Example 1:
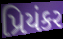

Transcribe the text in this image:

પ્રિયંકર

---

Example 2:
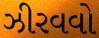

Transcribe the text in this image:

ઝીરવવો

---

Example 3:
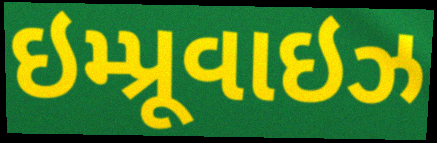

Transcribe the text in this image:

ઇમ્પ્રૂવાઇઝ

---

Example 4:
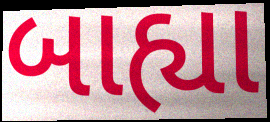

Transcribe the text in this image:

બાહ્યા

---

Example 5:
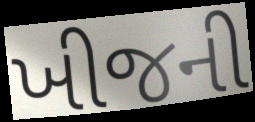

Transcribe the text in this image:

ખીજની